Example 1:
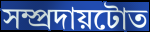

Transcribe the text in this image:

সম্প্ৰদায়টোত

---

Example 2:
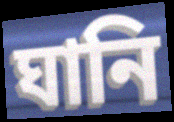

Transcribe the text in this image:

ঘানি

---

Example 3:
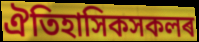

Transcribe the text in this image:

ঐতিহাসিকসকলৰ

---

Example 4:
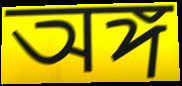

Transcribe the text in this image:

অঙ্গ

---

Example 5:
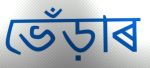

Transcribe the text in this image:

ভেঁড়াৰ